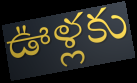
ఊళ్లకు